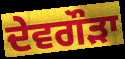
ਦੇਵਗੌੜਾ